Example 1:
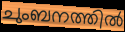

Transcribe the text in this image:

ചുംബനത്തിൽ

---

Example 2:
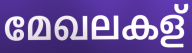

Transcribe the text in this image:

മേഖലകള്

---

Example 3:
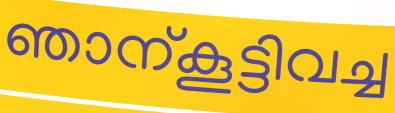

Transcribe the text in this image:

ഞാന്കൂട്ടിവച്ച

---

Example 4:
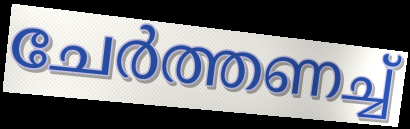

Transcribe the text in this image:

ചേർത്തണച്ച്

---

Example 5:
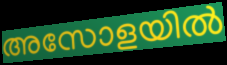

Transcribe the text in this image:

അസോളയിൽ